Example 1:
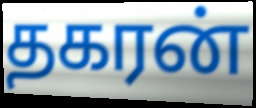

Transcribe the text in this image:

தகரன்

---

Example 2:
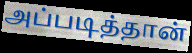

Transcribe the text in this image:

அப்படித்தான்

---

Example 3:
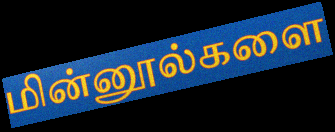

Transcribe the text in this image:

மின்னூல்களை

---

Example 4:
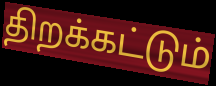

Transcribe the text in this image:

திறக்கட்டும்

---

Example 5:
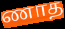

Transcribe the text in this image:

ணாத